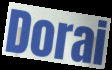
Dorai